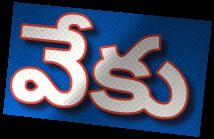
వేకు